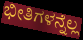
ಭೀತಿಗಳನ್ನೆಲ್ಲ